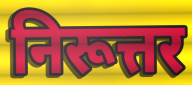
निरूत्तर